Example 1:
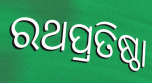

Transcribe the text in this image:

ରଥପ୍ରତିଷ୍ଠା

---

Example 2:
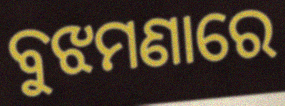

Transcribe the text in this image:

ବୁଝମଣାରେ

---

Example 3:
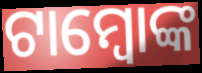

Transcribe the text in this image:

ଟାମ୍ବୋଙ୍କ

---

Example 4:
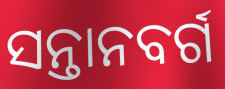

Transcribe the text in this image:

ସନ୍ତାନବର୍ଗ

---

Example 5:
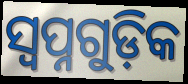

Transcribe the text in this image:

ସ୍ୱପ୍ନଗୁଡ଼ିକ